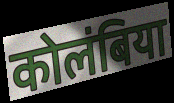
कोलंबिया